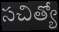
సచిత్యో